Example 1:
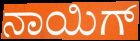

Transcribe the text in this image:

ನಾಯಿಗ್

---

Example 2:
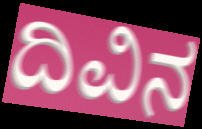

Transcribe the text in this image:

ದಿವಿನ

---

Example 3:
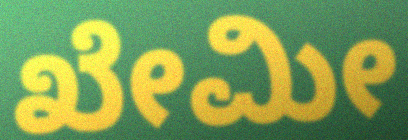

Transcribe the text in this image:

ಖೇಮೀ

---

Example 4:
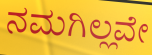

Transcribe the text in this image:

ನಮಗಿಲ್ಲವೇ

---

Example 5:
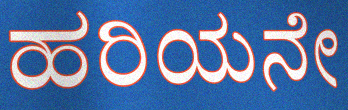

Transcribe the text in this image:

ಹರಿಯನೇ